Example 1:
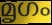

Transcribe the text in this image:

മൃഗം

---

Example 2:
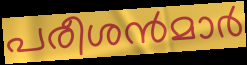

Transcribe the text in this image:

പരീശൻമാർ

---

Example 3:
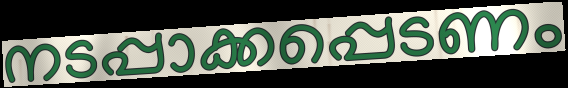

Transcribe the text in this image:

നടപ്പാക്കപ്പെടണം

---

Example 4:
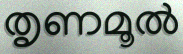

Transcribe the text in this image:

തൃണമൂൽ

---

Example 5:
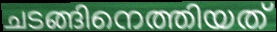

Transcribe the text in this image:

ചടങ്ങിനെത്തിയത്